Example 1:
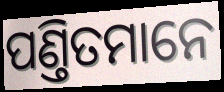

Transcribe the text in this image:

ପଣ୍ତିତମାନେ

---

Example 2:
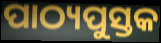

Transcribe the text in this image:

ପାଠ୍ୟପୁସ୍ତକ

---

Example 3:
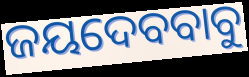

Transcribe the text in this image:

ଜୟଦେବବାବୁ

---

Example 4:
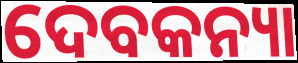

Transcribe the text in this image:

ଦେବକନ୍ୟା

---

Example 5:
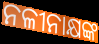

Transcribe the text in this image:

ନଳୀନାକ୍ଷଙ୍କ